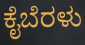
ಕೈಬೆರಳು